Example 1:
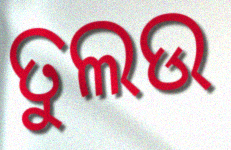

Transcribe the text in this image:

ତୁଲଉ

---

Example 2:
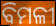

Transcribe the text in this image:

ବିମଳୀ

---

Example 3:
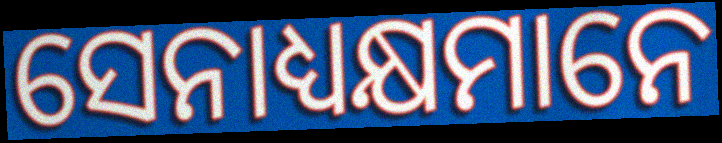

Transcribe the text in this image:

ସେନାଧ୍ୟକ୍ଷମାନେ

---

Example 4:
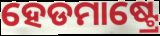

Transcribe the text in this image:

ହେଡମାଷ୍ଟ୍ରେ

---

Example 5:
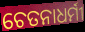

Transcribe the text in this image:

ଚେତନାଧର୍ମୀ